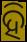
ହି